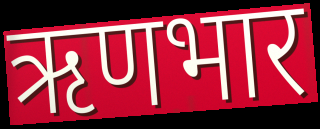
ऋणभार